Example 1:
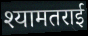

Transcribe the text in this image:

श्यामतराई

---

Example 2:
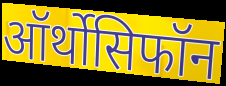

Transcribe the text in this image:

ऑर्थोसिफॉन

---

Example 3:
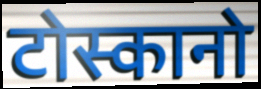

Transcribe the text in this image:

टोस्कानो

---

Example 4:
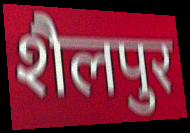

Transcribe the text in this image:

शैलपुर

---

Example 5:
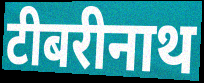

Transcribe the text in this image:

टीबरीनाथ